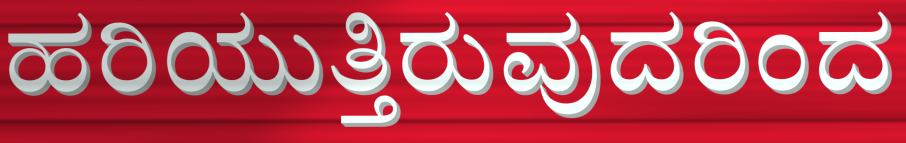
ಹರಿಯುತ್ತಿರುವುದರಿಂದ